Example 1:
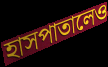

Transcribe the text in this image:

হাসপাতালেও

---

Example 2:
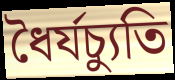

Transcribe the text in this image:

ধৈর্যচ্যুতি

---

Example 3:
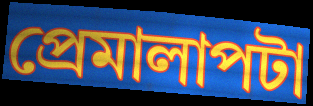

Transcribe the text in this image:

প্রেমালাপটা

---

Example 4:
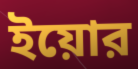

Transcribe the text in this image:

ইয়োর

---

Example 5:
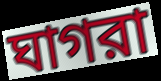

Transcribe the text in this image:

ঘাগরা